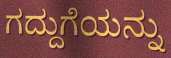
ಗದ್ದುಗೆಯನ್ನು